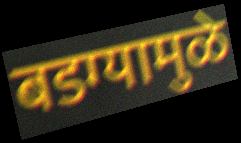
बडग्यामुळे